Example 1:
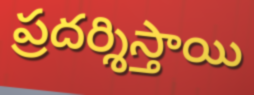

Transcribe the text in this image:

ప్రదర్శిస్తాయి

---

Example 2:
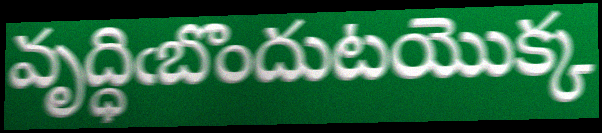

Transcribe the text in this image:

వృద్ధిఁబొందుటయొక్క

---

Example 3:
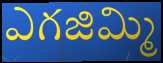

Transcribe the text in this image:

ఎగజిమ్మి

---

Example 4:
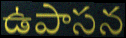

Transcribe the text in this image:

ఉపాసన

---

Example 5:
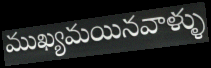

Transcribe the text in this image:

ముఖ్యమయినవాళ్ళు